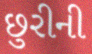
છુરીની